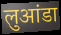
लुआंडा